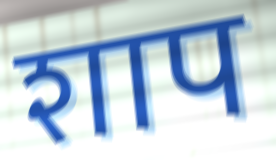
शाप